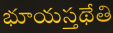
భూయస్తథేతి